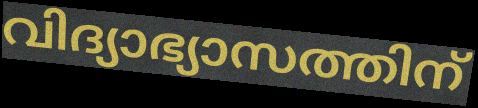
വിദ്യാഭ്യാസത്തിന്